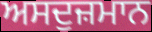
ਅਸਦੁਜ਼ਮਾਨ